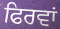
ਫਿਰਵਾਂ